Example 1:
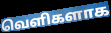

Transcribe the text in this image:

வெளிகளாக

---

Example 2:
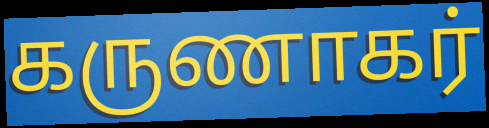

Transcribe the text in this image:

கருணாகர்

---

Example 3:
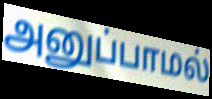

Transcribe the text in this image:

அனுப்பாமல்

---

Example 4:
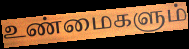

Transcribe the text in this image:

உண்மைகளும்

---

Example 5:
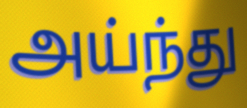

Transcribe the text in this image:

அய்ந்து